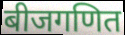
बीजगणित